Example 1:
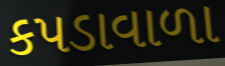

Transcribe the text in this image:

કપડાવાળા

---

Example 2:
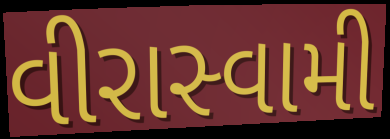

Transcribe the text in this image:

વીરાસ્વામી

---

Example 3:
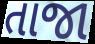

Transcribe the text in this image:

તાજા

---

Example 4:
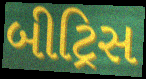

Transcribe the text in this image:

બીટ્રિસ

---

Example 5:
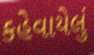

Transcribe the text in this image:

કહેવાયેલું